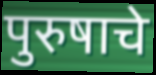
पुरुषाचे